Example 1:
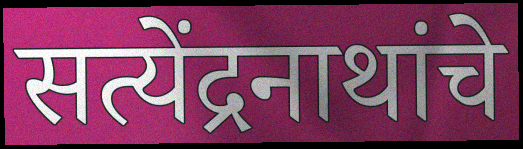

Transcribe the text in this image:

सत्येंद्रनाथांचे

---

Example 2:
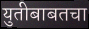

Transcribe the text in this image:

युतीबाबतचा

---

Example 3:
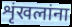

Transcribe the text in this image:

शृंखलांना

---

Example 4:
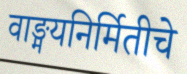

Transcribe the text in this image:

वाङ्मयनिर्मितीचे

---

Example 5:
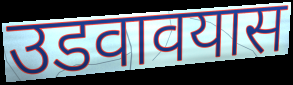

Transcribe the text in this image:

उडवावयास